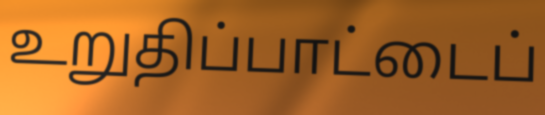
உறுதிப்பாட்டைப்